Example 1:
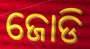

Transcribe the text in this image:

ଜୋଡି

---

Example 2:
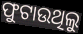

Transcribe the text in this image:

ଫୁଟାଉଥିଲୁ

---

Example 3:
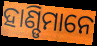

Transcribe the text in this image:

ହାଣ୍ଡିମାନେ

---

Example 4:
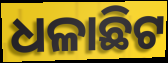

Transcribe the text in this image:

ଧଳାଛିଟ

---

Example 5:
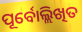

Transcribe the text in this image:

ପୂର୍ବୋଲ୍ଲିଖିତ